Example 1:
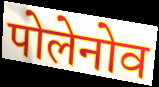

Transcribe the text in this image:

पोलेनोव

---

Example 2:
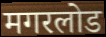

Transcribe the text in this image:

मगरलोड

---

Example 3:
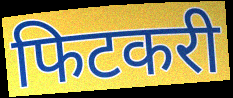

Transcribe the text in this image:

फिटकरी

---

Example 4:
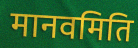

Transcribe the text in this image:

मानवमिति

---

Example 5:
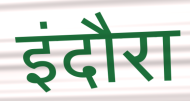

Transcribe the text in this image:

इंदौरा